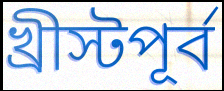
খ্রীস্টপূর্ব